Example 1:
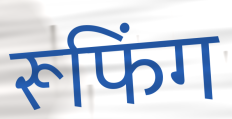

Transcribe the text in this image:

रूफिंग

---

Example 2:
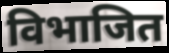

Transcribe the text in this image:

विभाजित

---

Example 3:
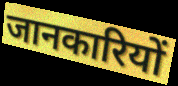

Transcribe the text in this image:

जानकारियों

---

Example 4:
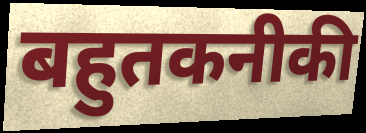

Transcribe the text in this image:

बहुतकनीकी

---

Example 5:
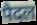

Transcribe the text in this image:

पैदल